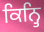
ਕਿਨ੍ਤਿ